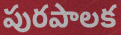
పురపాలక